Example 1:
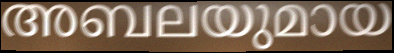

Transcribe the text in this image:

അബലയുമായ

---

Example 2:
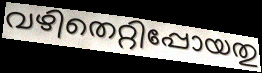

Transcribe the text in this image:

വഴിതെറ്റിപ്പോയതു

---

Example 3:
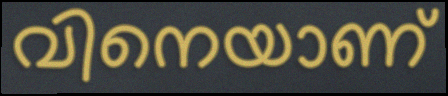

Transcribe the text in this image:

വിനെയാണ്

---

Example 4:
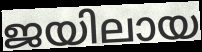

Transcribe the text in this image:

ജയിലായ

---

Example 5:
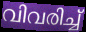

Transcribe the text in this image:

വിവരിച്ച്